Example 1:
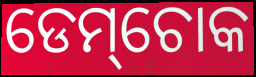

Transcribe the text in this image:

ଡେମ୍‌ଚୋକ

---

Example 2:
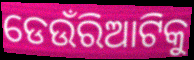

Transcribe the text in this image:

ଡେଉଁରିଆଟିକୁ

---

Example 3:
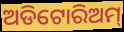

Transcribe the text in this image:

ଅଡିଟୋରିଅମ୍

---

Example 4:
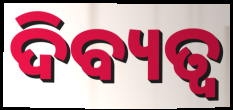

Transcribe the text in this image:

ଦିବ୍ୟତ୍ବ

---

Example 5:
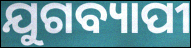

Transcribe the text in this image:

ଯୁଗବ୍ୟାପୀ